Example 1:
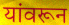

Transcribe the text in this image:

यांवरून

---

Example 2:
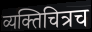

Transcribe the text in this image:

व्यक्तिचित्रच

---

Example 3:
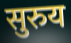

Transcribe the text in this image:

सुरुय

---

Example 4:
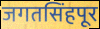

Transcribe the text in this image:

जगतसिंहपूर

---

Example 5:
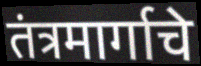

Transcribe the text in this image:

तंत्रमार्गाचे